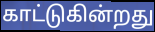
காட்டுகின்றது